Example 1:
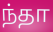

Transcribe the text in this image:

ந்தா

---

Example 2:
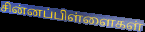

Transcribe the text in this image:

சின்னப்பிள்ளைகள்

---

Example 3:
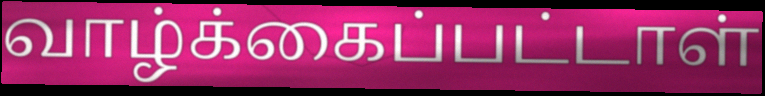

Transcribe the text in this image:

வாழ்க்கைப்பட்டாள்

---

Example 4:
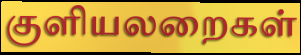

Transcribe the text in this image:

குளியலறைகள்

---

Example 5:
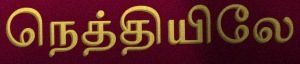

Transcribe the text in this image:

நெத்தியிலே